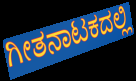
ಗೀತನಾಟಕದಲ್ಲಿ